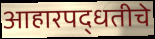
आहारपद्धतीचे